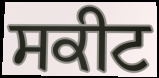
ਸਕੀਟ